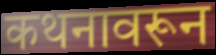
कथनावरून